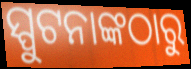
ସ୍ପୁଟନାଙ୍କଠାରୁ